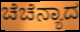
ಚೆಚೆನ್ಯಾದ